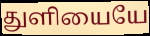
துளியையே